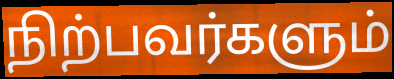
நிற்பவர்களும்